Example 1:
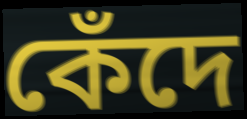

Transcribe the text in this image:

কেঁদে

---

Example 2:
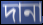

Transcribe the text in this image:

দানা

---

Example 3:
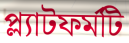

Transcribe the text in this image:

প্ল্যাটফর্মটি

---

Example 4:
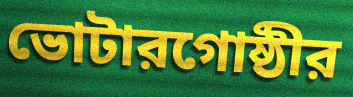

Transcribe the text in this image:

ভোটারগোষ্ঠীর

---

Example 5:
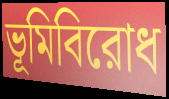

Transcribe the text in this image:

ভূমিবিরোধ